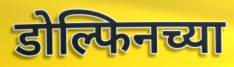
डोल्फिनच्या